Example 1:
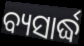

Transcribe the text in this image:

ବ୍ୟସାର୍ଦ୍ଧ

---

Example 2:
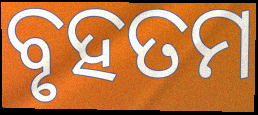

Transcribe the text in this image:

ବୃହତମ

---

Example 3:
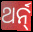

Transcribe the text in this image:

ଥର୍ନ୍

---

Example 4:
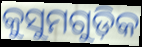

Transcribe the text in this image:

କୁସୁମଗୁଡ଼ିକ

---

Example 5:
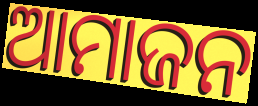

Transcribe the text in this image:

ଆମାଜନ